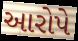
આરોપે